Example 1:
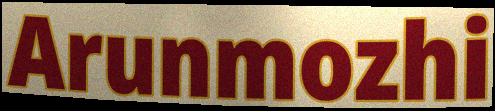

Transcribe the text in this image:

Arunmozhi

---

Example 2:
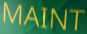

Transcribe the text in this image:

MAINT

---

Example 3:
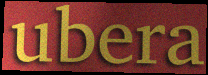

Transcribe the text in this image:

ubera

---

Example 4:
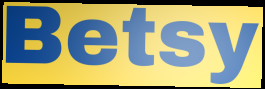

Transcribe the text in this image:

Betsy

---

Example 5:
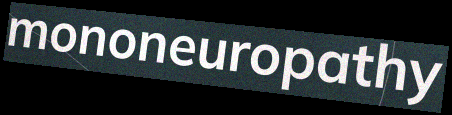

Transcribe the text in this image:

mononeuropathy